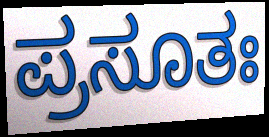
ಪ್ರಸೂತಃ